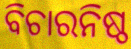
ବିଚାରନିଷ୍ଠ